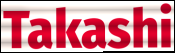
Takashi